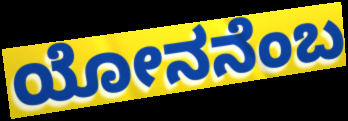
ಯೋನನೆಂಬ